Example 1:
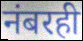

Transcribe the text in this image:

नंबरही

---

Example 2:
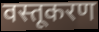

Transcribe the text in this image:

वस्तूकरण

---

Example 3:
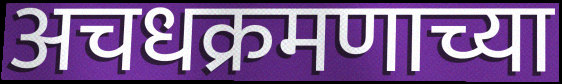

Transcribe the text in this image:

अचधक्रमणाच्या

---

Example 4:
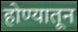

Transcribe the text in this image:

होण्यातून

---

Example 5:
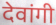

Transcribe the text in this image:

देवांगी